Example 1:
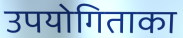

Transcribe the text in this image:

उपयोगिताका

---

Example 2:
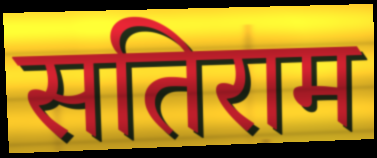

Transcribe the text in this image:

सतिराम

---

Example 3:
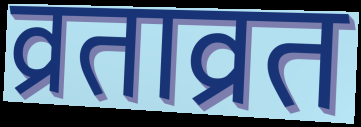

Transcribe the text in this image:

व्रताव्रत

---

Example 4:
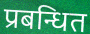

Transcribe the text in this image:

प्रबन्धित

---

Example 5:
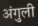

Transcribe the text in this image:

अंगुली